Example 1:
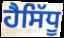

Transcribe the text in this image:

ਹੈਸਿੱਧੂ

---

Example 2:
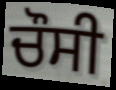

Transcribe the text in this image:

ਚੌਸੀ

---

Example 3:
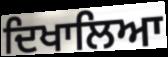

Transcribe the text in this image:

ਦਿਖਾਲਿਆ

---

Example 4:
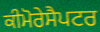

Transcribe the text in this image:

ਕੀਮੋਰੇਸੈਪਟਰ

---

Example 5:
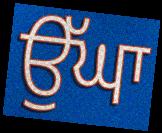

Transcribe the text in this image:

ਉੱਘਾ